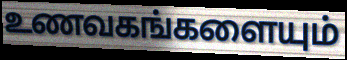
உணவகங்களையும்